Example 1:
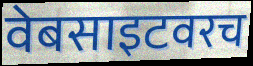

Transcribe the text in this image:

वेबसाइटवरच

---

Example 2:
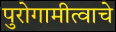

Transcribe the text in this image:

पुरोगामीत्वाचे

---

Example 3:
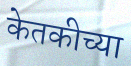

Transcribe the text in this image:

केतकीच्या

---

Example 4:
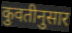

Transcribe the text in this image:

कुवतीनुसार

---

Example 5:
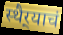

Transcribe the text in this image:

स्थैर्याचं